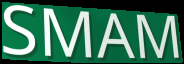
SMAM